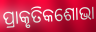
ପ୍ରାକୃତିକଶୋଭା